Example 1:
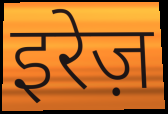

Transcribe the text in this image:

इरेज़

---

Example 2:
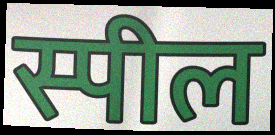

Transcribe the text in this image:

स्पील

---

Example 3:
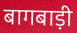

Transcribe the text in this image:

बागबाड़ी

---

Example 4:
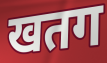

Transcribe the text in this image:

खतग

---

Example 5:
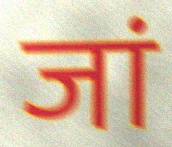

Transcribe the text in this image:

जां